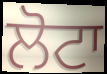
ਲੋਟਾ